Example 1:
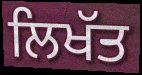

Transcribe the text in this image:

ਲਿਖੱਤ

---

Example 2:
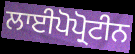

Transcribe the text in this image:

ਲਾਈਪੋਪ੍ਰੋਟੀਨ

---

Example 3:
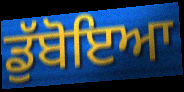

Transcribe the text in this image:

ਡੁੱਬੋਇਆ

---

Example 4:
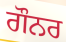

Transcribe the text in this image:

ਗੌਨਰ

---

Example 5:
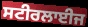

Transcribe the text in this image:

ਸਟੀਰਲਾਈਜ